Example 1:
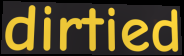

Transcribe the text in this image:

dirtied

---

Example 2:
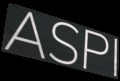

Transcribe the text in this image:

ASPI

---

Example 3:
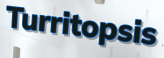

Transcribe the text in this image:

Turritopsis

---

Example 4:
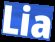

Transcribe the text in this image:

Lia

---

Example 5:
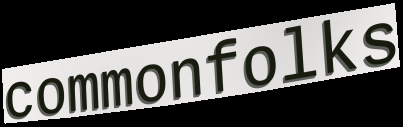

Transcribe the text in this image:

commonfolks